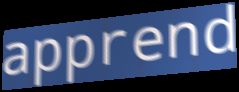
apprend